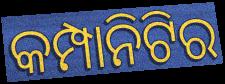
କମ୍ପାନିଟିର